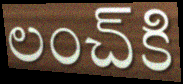
లంచ్‌కి